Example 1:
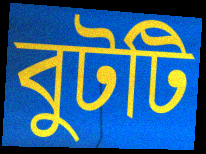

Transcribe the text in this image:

বুটটি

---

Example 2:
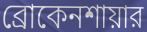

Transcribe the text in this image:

ব্রোকেনশায়ার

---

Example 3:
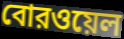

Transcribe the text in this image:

বোরওয়েল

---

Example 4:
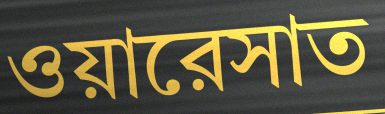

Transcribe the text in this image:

ওয়ারেসাত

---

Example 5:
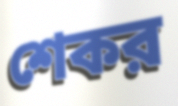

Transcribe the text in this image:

শেকর